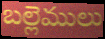
బల్లెములు